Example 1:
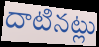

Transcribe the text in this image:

దాటినట్లు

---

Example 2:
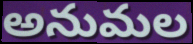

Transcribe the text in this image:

అనుమల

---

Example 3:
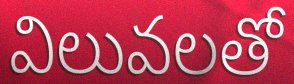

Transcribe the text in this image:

విలువలతో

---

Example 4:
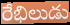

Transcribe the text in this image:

రేభిలుడు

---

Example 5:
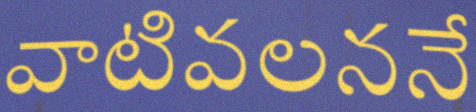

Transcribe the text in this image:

వాటివలననే